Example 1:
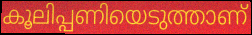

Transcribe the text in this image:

കൂലിപ്പണിയെടുത്താണ്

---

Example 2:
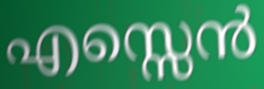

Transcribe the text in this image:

എസ്സെൻ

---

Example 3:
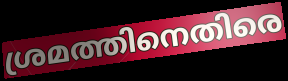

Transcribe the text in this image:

ശ്രമത്തിനെതിരെ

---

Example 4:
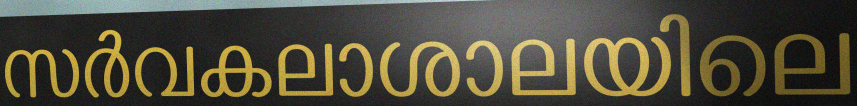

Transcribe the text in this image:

സർവകലാശാലയിലെ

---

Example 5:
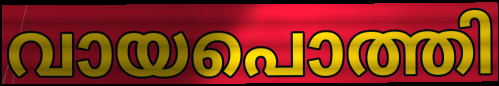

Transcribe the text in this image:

വായപൊത്തി